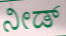
ನೀಡ್